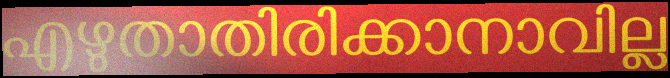
എഴുതാതിരിക്കാനാവില്ല